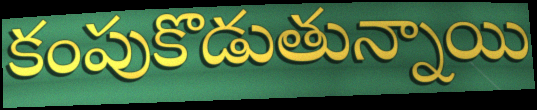
కంపుకొడుతున్నాయి